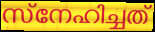
സ്‌നേഹിച്ചത്